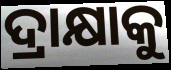
ଦ୍ରାକ୍ଷାକୁ